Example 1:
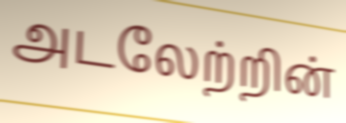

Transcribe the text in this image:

அடலேற்றின்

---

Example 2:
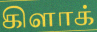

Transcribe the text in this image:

கிளாக்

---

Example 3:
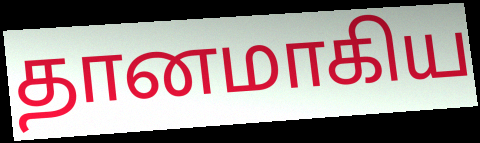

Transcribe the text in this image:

தானமாகிய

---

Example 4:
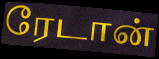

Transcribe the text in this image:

ரேடான்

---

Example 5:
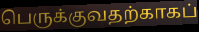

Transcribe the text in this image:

பெருக்குவதற்காகப்